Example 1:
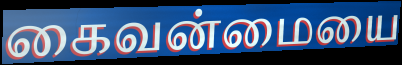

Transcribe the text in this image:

கைவன்மையை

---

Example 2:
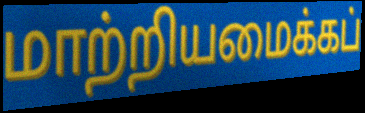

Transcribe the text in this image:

மாற்றியமைக்கப்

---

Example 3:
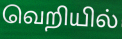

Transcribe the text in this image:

வெறியில்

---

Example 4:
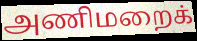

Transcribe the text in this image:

அணிமறைக்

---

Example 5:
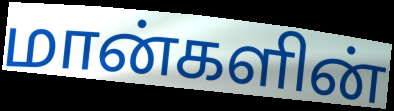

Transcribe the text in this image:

மான்களின்